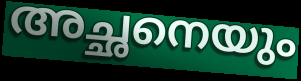
അച്ഛനെയും